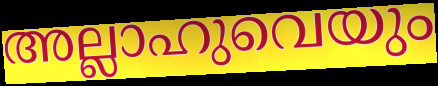
അല്ലാഹുവെയും